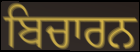
ਬਿਚਾਰਨ